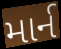
માર્ન